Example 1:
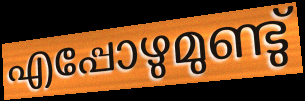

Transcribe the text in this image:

എപ്പോഴുമുണ്ടു്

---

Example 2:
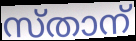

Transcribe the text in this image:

സ്താന്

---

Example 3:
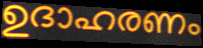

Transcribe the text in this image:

ഉദാഹരണം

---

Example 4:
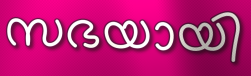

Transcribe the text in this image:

സഭയായി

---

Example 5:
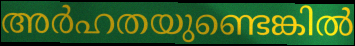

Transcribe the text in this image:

അർഹതയുണ്ടെങ്കിൽ